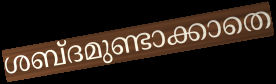
ശബ്ദമുണ്ടാക്കാതെ